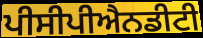
ਪੀਸੀਪੀਐਨਡੀਟੀ